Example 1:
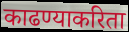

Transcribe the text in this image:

काढण्याकरिता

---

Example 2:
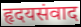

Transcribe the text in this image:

हृदयसंवाद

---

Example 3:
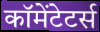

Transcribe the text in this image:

कॉमेंटेटर्स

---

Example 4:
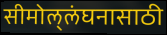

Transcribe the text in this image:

सीमोल्लंघनासाठी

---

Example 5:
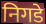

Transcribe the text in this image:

निगडे